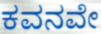
ಕವನವೇ